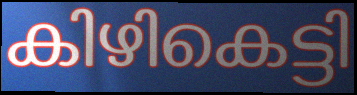
കിഴികെട്ടി